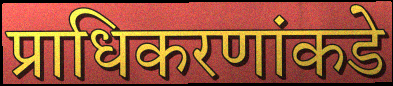
प्राधिकरणांकडे